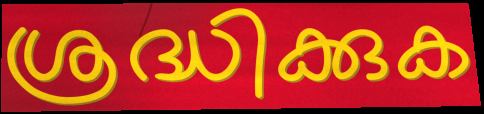
ശ്രദ്ധിക്കുക